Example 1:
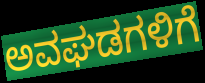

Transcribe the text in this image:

ಅವಘಡಗಳಿಗೆ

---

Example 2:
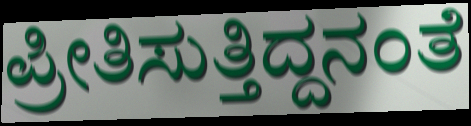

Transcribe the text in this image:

ಪ್ರೀತಿಸುತ್ತಿದ್ದನಂತೆ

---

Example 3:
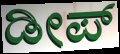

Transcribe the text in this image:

ಡೀಪ್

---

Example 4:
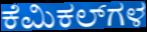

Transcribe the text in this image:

ಕೆಮಿಕಲ್‌ಗಳ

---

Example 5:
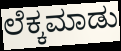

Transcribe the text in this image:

ಲೆಕ್ಕಮಾಡು